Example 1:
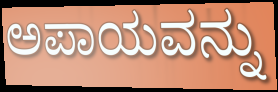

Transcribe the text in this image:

ಅಪಾಯವನ್ನು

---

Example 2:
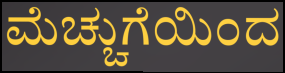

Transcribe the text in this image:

ಮೆಚ್ಚುಗೆಯಿಂದ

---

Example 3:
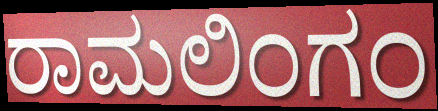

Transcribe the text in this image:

ರಾಮಲಿಂಗಂ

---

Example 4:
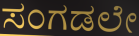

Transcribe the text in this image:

ಸಂಗಡಲೇ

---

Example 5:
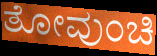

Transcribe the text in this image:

ತೋವುಂಚಿ